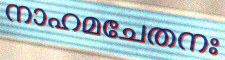
നാഹമചേതനഃ